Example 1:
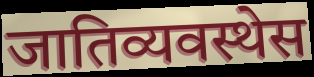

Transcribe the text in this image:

जातिव्यवस्थेस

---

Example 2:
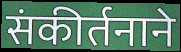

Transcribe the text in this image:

संकीर्तनाने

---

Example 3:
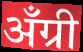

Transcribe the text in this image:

अँग्री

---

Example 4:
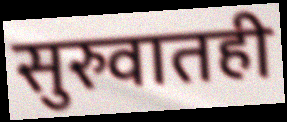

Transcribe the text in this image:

सुरुवातही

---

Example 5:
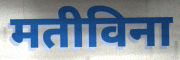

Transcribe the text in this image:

मतीविना